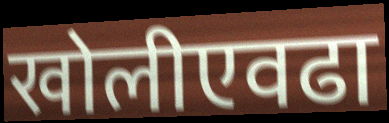
खोलीएवढा